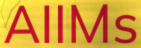
AIIMs